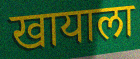
खायाला